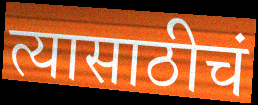
त्यासाठीचं